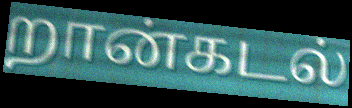
றான்கடல்